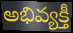
అభివ్యక్తీ